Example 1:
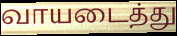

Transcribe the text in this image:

வாயடைத்து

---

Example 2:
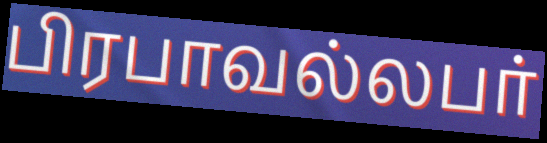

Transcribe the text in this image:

பிரபாவல்லபர்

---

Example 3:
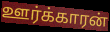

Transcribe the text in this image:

ஊர்க்காரன்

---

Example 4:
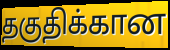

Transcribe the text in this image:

தகுதிக்கான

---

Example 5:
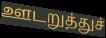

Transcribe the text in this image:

ஊடறுத்துச்